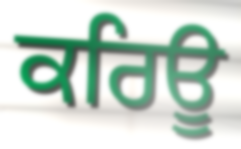
ਕਰਿਊ